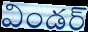
విండర్